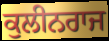
ਕੁਲੀਨਰਾਜ